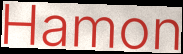
Hamon